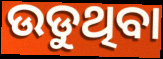
ଉଡୁଥିବା